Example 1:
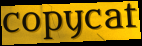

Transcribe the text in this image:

copycat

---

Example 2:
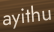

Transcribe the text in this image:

ayithu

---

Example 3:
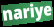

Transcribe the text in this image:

nariye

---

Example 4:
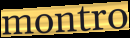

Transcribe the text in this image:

montro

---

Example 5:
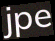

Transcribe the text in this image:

jpe